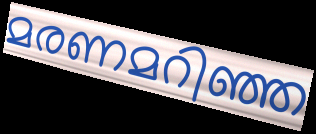
മരണമറിഞ്ഞ